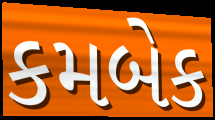
કમબેક